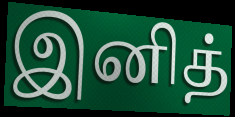
இனித்